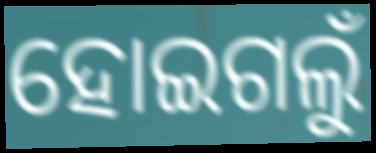
ହୋଇଗଲୁଁ